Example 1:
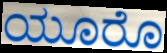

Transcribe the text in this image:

ಯೂರೊ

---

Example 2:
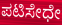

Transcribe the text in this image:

ಪಟಿಸೇಧೇ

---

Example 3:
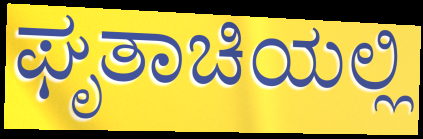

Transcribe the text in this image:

ಘೃತಾಚಿಯಲ್ಲಿ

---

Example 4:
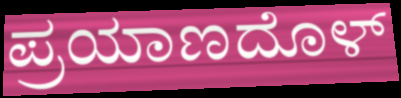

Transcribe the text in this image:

ಪ್ರಯಾಣದೊಳ್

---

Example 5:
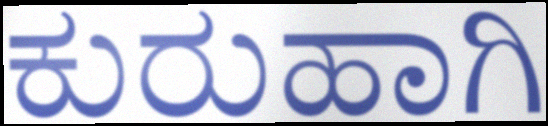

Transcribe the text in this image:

ಕುರುಹಾಗಿ